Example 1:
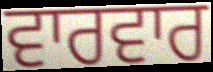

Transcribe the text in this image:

ਵਾਰਵਾਰ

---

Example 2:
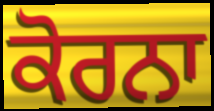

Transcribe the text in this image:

ਕੋਰਨਾ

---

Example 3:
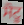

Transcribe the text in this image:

ਸੋਟੂ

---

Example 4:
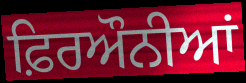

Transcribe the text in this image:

ਫ਼ਿਰਔਨੀਆਂ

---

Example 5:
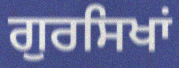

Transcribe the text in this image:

ਗੁਰਸਿਖਾਂ